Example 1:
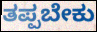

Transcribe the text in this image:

ತಪ್ಪಬೇಕು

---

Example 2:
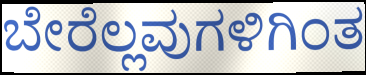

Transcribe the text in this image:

ಬೇರೆಲ್ಲವುಗಳಿಗಿಂತ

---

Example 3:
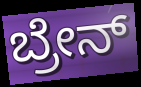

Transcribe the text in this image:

ಬ್ರೇನ್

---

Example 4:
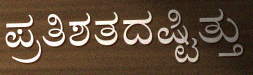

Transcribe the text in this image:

ಪ್ರತಿಶತದಷ್ಟಿತ್ತು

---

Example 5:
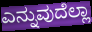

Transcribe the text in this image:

ಎನ್ನುವುದೆಲ್ಲಾ